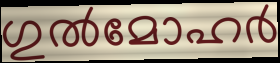
ഗുൽമോഹർ